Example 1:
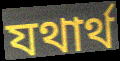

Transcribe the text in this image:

যথার্থ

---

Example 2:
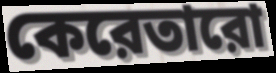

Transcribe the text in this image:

কেরেতারো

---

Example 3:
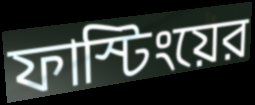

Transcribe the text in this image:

ফাস্টিংয়ের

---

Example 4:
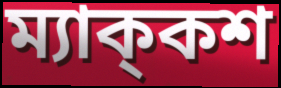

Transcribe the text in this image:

ম্যাক্‌কশ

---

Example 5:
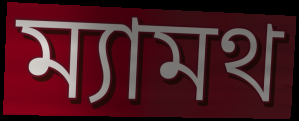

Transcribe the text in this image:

ম্যামথ